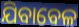
ଯିବାବେଳ